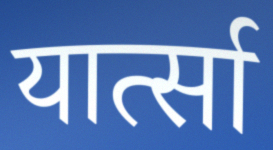
यार्त्सा